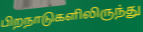
பிறநாடுகளிலிருந்து